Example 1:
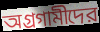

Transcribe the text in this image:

অগ্রগামীদের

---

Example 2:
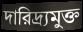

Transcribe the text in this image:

দারিদ্র্যমুক্ত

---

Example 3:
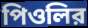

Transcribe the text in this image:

পিওলির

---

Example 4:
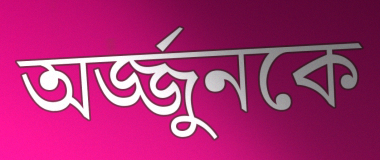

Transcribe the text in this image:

অর্জ্জুনকে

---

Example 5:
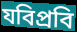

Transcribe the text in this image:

যবিপ্রবি